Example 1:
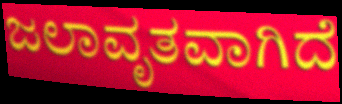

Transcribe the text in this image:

ಜಲಾವೃತವಾಗಿದೆ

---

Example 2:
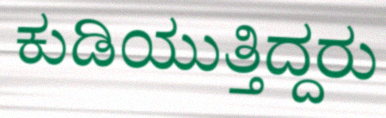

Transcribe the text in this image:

ಕುಡಿಯುತ್ತಿದ್ದರು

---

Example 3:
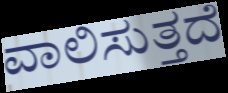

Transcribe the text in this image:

ವಾಲಿಸುತ್ತದೆ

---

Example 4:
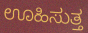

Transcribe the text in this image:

ಊಹಿಸುತ್ತ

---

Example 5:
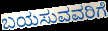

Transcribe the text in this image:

ಬಯಸುವವರಿಗೆ